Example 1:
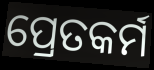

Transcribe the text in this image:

ପ୍ରେତକର୍ମ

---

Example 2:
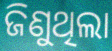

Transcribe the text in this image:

ଜିଣୁଥିଲା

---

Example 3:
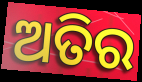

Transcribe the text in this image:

ଅତିର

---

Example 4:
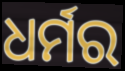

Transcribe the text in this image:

ଧର୍ମର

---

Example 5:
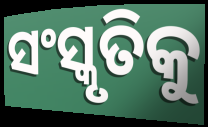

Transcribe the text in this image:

ସଂସ୍କୃତିକୁ